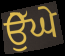
ਉੇੱਘੇ